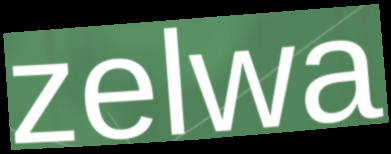
zelwa